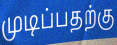
முடிப்பதற்கு